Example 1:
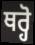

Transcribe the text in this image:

ਥਰ੍ਹੋ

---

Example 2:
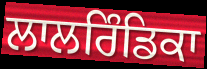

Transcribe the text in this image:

ਲਾਲਰਿੰਡਿਕਾ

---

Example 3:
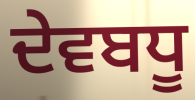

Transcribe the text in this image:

ਦੇਵਬਧੂ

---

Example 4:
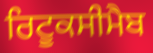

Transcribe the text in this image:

ਰਿਟੂਕਸੀਮੈਬ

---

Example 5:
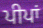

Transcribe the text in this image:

ਪੀਪਾਂ